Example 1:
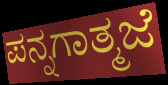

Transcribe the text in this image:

ಪನ್ನಗಾತ್ಮಜೆ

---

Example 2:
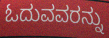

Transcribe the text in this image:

ಓದುವವರನ್ನು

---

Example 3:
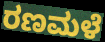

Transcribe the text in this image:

ರಣಮಳೆ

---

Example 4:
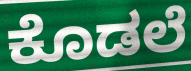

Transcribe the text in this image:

ಕೊಡಲೆ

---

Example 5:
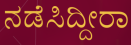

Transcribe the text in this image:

ನಡೆಸಿದ್ದೀರಾ